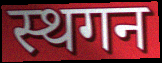
स्थगन